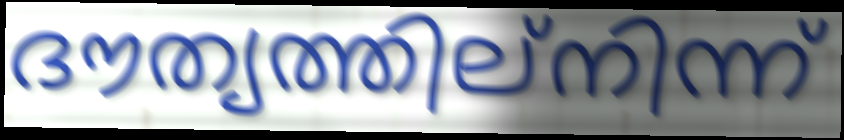
ദൗത്യത്തില്നിന്ന്